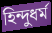
হিন্দুধৰ্ম